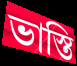
ভাস্তি